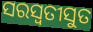
ସରସ୍ୱତୀସୁତ